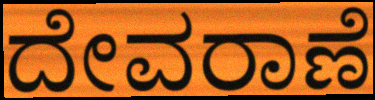
ದೇವರಾಣೆ